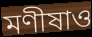
মণীষাও